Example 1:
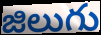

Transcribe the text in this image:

జిలుగు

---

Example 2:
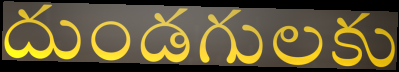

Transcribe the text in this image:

దుండగులకు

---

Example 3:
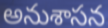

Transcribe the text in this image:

అనుశాసన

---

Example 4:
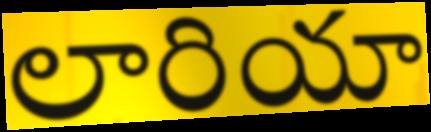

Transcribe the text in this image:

లారియా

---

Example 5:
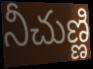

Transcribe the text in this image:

నీచుణ్ణి